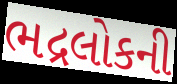
ભદ્રલોકની